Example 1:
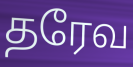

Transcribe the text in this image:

தரேவ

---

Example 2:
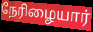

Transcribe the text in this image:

நேரிழையார்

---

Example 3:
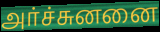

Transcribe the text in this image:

அர்ச்சுனனை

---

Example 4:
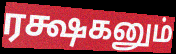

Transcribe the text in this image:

ரக்ஷகனும்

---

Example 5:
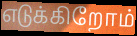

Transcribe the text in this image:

எடுக்கிறோம்